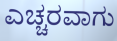
ಎಚ್ಚರವಾಗು